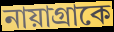
নায়াগ্রাকে